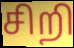
சிறி